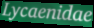
Lycaenidae